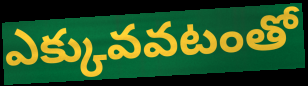
ఎక్కువవటంతో